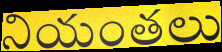
నియంతలు